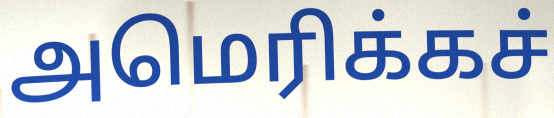
அமெரிக்கச்